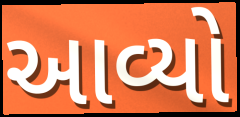
આવ્યો